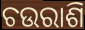
ଚଉରାଶି